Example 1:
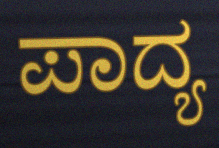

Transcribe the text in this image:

ಪಾದ್ಯ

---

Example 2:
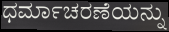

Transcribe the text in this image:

ಧರ್ಮಾಚರಣೆಯನ್ನು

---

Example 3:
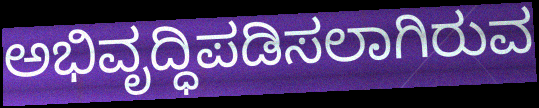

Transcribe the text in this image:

ಅಭಿವೃದ್ಧಿಪಡಿಸಲಾಗಿರುವ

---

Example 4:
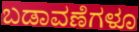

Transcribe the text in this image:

ಬಡಾವಣೆಗಳೂ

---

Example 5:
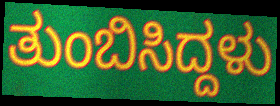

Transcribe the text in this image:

ತುಂಬಿಸಿದ್ದಳು